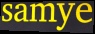
samye